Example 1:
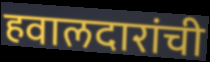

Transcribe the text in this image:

हवालदारांची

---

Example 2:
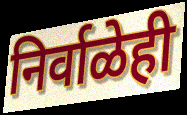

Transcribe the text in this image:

निर्वाळेही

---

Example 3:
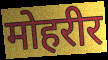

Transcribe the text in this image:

मोहरीर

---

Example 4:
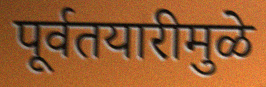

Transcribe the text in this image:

पूर्वतयारीमुळे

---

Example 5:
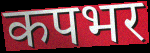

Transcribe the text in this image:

कपभर